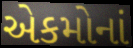
એકમોનાં